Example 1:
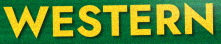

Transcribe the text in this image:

WESTERN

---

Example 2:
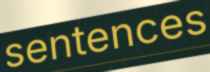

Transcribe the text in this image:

sentences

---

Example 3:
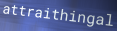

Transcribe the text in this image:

attraithingal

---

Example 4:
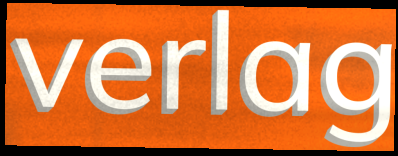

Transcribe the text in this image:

verlag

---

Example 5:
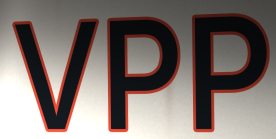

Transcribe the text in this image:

VPP